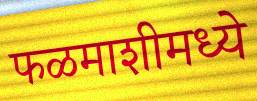
फळमाशीमध्ये